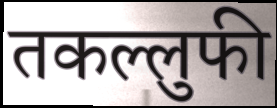
तकल्लुफी